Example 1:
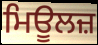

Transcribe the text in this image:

ਮਿਊਲਜ਼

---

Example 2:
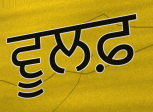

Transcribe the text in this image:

ਵੂਲਫ਼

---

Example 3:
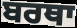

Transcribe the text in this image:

ਬਰਥਾ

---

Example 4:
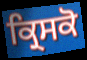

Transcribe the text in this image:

ਕ੍ਰਿਸਕੋ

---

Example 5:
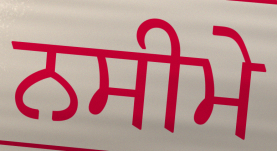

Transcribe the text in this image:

ਨਸੀਮੇ